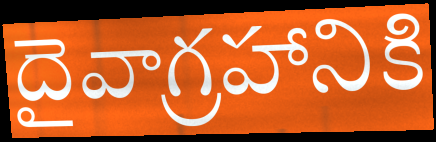
దైవాగ్రహానికి